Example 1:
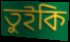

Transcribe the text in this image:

তুইকি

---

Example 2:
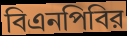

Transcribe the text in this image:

বিএনপিবির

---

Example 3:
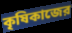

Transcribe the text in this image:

কৃষিকাজের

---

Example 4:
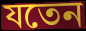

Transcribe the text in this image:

যতেন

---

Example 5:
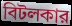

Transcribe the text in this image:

বিটলকার